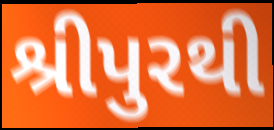
શ્રીપુરથી